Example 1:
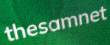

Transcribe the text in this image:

thesamnet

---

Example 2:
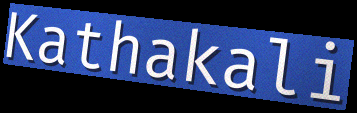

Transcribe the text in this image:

Kathakali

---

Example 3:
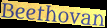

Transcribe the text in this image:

Beethovan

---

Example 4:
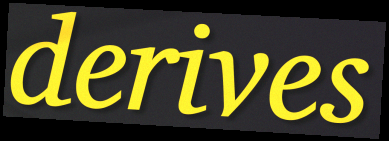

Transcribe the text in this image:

derives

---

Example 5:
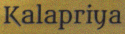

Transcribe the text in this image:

Kalapriya